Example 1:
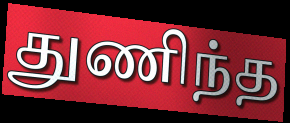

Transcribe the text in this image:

துணிந்த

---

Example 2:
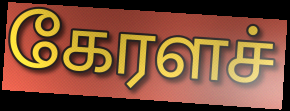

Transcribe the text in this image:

கேரளச்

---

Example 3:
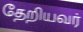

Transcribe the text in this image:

தேறியவர்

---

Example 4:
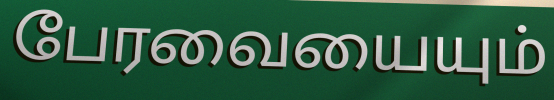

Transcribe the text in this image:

பேரவையையும்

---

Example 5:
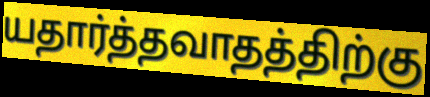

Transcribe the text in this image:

யதார்த்தவாதத்திற்கு